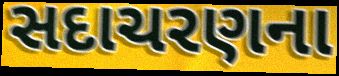
સદાચરણના